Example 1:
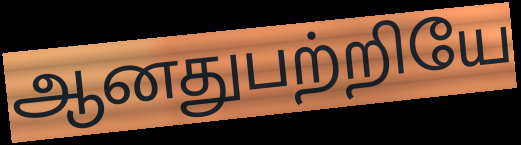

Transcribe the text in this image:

ஆனதுபற்றியே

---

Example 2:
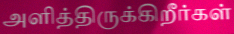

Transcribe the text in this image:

அளித்திருக்கிறீர்கள்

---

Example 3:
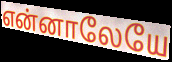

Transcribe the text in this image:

என்னாலேயே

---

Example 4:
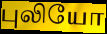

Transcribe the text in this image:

புலியோ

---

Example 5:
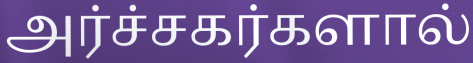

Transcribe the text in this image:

அர்ச்சகர்களால்